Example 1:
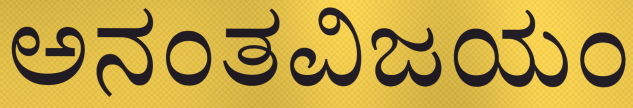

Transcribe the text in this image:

ಅನಂತವಿಜಯಂ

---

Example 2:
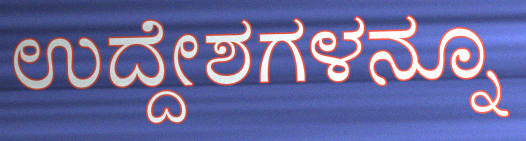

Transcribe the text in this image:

ಉದ್ದೇಶಗಳನ್ನೂ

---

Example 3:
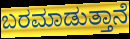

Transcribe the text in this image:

ಬರಮಾಡುತ್ತಾನೆ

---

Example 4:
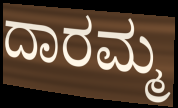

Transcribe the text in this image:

ದಾರಮ್ಮ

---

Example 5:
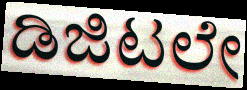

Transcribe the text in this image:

ಡಿಜಿಟಲೇ